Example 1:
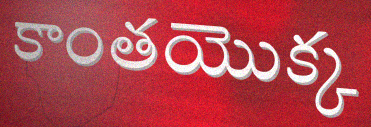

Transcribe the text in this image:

కాంతయొక్క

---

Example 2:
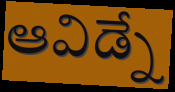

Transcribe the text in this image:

ఆవిడ్నే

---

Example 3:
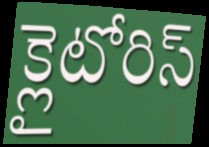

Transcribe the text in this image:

క్లైటోరిస్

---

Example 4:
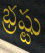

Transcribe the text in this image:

భ్రష్టు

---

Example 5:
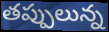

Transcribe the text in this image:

తప్పులున్న